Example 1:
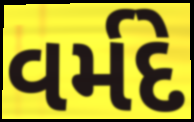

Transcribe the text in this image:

વર્મદે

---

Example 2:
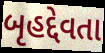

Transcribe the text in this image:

બૃહદ્દેવતા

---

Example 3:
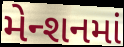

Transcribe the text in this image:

મેન્શનમાં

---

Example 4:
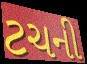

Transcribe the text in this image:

ટચની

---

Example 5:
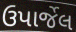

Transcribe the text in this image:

ઉપાર્જેલ